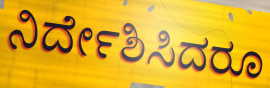
ನಿರ್ದೇಶಿಸಿದರೂ